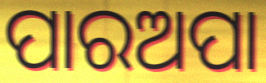
ପାରଅପା